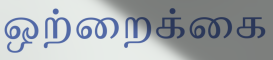
ஒற்றைக்கை